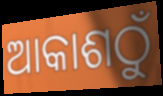
ଆକାଶଠୁଁ